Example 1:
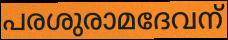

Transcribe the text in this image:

പരശുരാമദേവന്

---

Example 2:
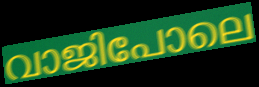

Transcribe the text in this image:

വാജിപോലെ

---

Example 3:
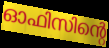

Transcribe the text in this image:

ഓഫിസിന്റെ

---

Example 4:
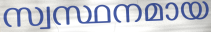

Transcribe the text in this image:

സ്വസ്ഥനമായ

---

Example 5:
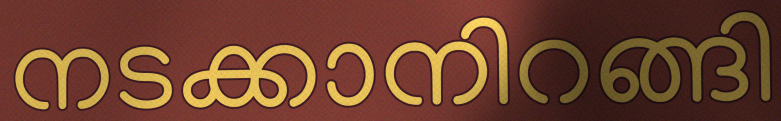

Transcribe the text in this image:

നടക്കാനിറങ്ങി